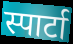
स्पार्टा